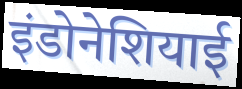
इंडोनेशियाई